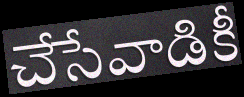
చేసేవాడికీ